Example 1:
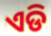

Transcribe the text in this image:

ଏଡି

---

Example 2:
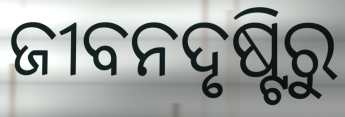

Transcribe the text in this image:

ଜୀବନଦୃଷ୍ଟିରୁ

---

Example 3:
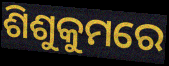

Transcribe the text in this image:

ଶିଶୁକୁମରେ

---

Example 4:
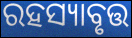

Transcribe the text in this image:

ରହସ୍ୟାବୃତ୍ତ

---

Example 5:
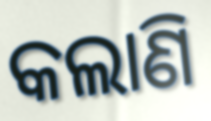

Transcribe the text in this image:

କଲାଣି